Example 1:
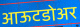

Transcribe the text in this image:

आऊटडोअर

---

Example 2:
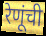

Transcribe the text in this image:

रेणूंची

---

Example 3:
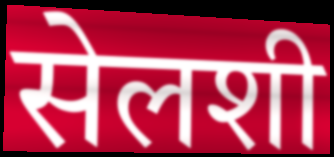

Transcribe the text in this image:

सेलशी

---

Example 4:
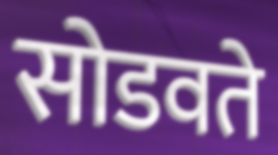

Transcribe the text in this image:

सोडवते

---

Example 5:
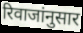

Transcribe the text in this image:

रिवाजांनुसार